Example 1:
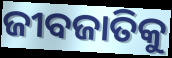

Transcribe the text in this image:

ଜୀବଜାତିକୁ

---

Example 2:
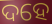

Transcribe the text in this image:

ଦହେ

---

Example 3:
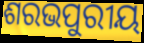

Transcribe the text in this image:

ଶରଭପୁରୀୟ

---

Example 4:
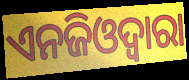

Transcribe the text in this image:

ଏନଜିଓଦ୍ୱାରା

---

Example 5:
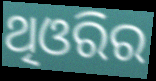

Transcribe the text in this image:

ଥିଓରିର